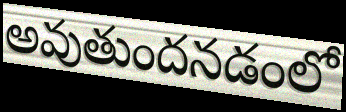
అవుతుందనడంలో